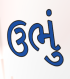
ઉભું